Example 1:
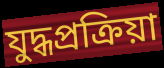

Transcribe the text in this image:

যুদ্ধপ্রক্রিয়া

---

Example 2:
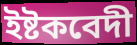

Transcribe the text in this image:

ইষ্টকবেদী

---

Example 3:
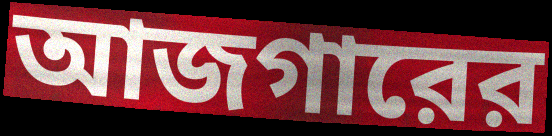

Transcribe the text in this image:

আজগারের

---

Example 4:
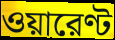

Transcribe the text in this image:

ওয়ারেণ্ট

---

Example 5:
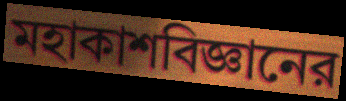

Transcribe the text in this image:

মহাকাশবিজ্ঞানের